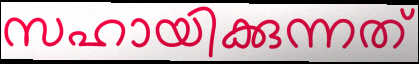
സഹായിക്കുന്നത്